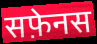
सफ़ेनस